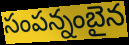
సంపన్నంబైన